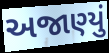
અજાણ્યું